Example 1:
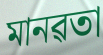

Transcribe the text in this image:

মানৱতা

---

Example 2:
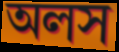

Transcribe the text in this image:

অলস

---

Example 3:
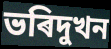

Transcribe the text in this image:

ভৰিদুখন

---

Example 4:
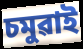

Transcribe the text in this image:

চমুৱাই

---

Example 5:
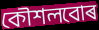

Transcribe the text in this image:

কৌশলবোৰ